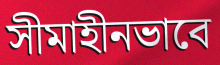
সীমাহীনভাবে